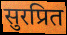
सुरप्रित